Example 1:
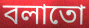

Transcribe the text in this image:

বলাতো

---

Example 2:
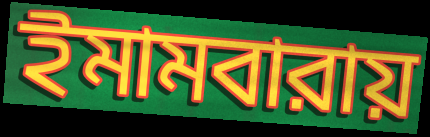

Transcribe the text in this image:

ইমামবারায়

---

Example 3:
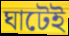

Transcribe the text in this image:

ঘাটেই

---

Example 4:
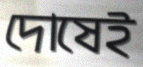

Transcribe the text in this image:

দোষেই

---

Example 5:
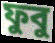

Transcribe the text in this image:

ফুবু